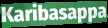
Karibasappa